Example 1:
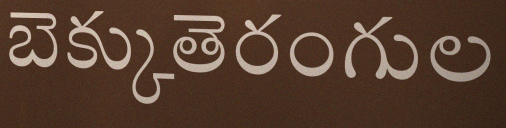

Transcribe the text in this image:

బెక్కుతెరంగుల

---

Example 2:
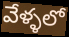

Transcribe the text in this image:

వేళ్ళలో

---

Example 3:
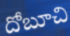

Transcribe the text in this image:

దోబూచి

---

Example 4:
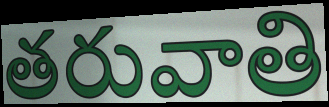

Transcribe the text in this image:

తరువాతి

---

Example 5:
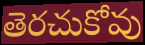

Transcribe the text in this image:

తెరచుకోవు